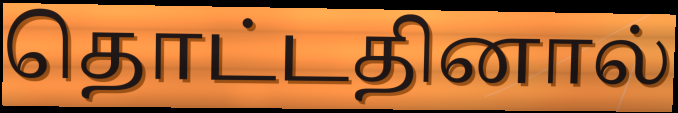
தொட்டதினால்